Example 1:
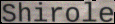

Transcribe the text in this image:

Shirole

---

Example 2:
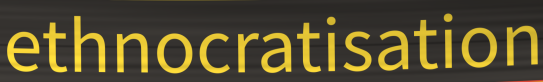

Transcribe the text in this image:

ethnocratisation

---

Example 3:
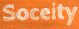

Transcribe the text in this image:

Soceity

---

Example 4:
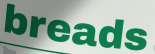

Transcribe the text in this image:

breads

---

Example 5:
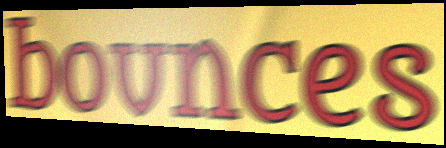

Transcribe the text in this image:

bounces